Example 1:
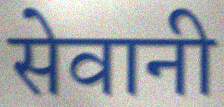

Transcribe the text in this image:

सेवानी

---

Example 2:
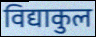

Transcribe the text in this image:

विद्याकुल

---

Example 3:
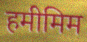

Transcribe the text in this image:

हमीमिम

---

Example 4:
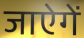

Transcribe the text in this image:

जाऐगें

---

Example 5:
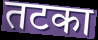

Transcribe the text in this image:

तटका